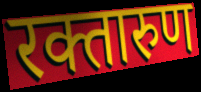
रक्तारुण